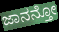
ಜಾನನ್ತೋ